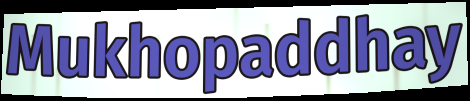
Mukhopaddhay